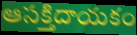
ఆసక్తిదాయకం